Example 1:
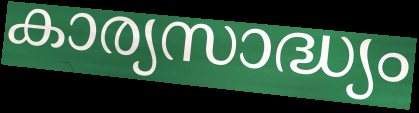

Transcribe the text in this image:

കാര്യസാദ്ധ്യം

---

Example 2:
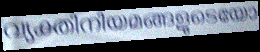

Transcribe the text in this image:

വ്യക്തിനിയമങ്ങളുടെയോ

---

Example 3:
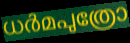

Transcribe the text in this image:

ധർമപുത്രോ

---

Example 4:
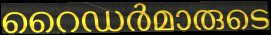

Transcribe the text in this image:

റൈഡർമാരുടെ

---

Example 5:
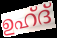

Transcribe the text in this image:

ഉഹ്ദ്